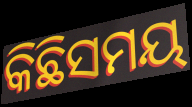
କିଛିସମୟ